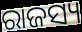
ରାଜସ୍ୟ